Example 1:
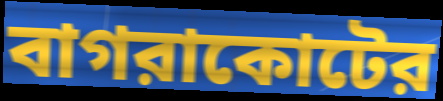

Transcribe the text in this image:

বাগরাকোটের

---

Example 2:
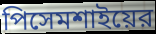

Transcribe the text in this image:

পিসেমশাইয়ের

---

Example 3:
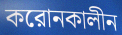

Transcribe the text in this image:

করোনকালীন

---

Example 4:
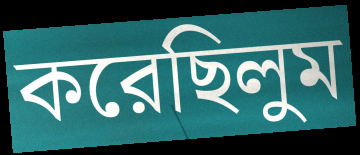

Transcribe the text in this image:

করেছিলুম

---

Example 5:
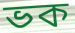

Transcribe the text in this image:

ভক